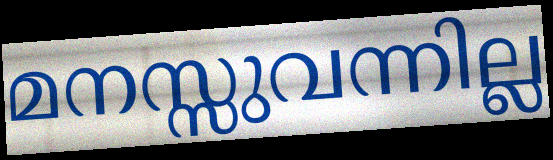
മനസ്സുവന്നില്ല